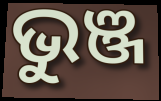
ଭୁଞ୍ଜ